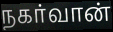
நகர்வான்